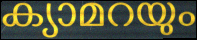
ക്യാമറയും